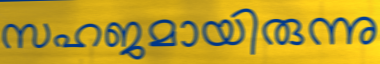
സഹജമായിരുന്നു